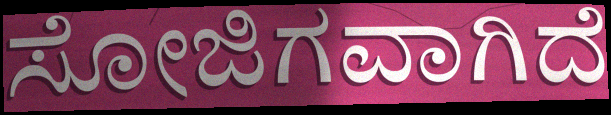
ಸೋಜಿಗವಾಗಿದೆ